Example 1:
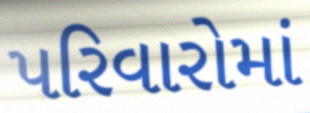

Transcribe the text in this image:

પરિવારોમાં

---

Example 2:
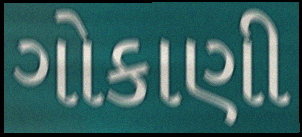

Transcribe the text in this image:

ગોકાણી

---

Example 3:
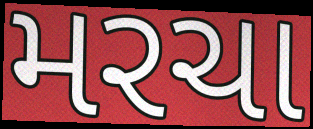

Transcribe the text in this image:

મરચા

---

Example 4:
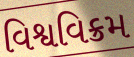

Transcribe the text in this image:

વિશ્વવિક્રમ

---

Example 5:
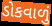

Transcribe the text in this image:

ડોકવાળું